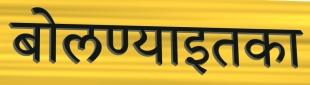
बोलण्याइतका